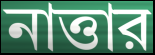
নাত্তার